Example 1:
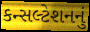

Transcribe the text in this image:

કન્સલ્ટેશનનું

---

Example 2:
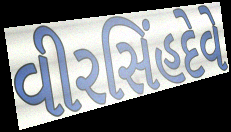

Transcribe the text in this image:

વીરસિંહદેવે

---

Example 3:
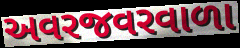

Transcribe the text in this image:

અવરજવરવાળા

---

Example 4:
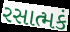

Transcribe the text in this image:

રસાત્મકં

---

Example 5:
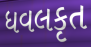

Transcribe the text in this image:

ધવલકૃત